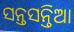
ସନ୍ତସନ୍ତିଆ